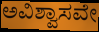
ಅವಿಶ್ವಾಸವೇ